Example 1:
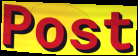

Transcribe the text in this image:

Post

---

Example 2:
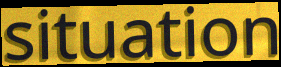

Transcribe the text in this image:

situation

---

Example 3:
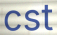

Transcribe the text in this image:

cst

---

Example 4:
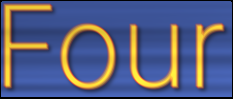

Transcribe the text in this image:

Four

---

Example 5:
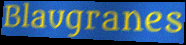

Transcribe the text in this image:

Blaugranes